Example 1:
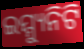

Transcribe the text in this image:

ଇମ୍ମ୍ୟୁନିଟି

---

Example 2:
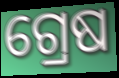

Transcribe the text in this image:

ଗ୍ରେଷ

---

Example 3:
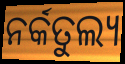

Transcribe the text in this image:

ନର୍କତୁଲ୍ୟ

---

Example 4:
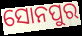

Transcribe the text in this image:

ସୋନପୁର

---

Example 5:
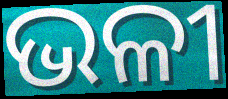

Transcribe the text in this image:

ଭଳୀ